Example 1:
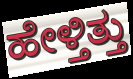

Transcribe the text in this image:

ಹೇಳ್ತಿತ್ತು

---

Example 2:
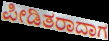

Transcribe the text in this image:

ಪೀಡಿತರಾದಾಗ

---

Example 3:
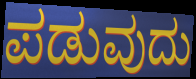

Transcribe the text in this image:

ಪಡುವುದು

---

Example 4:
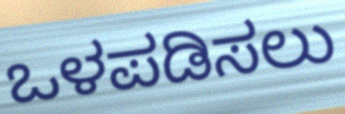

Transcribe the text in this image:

ಒಳಪಡಿಸಲು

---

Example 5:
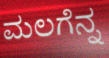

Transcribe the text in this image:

ಮಲಗೆನ್ನ